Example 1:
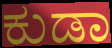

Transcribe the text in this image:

ಕುಡಾ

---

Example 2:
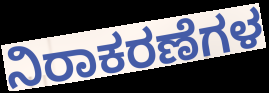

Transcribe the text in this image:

ನಿರಾಕರಣೆಗಳ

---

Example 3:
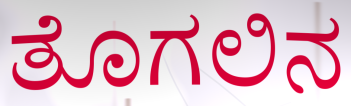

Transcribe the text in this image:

ತೊಗಲಿನ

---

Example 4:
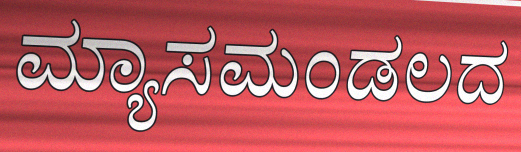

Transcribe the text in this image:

ಮ್ಯಾಸಮಂಡಲದ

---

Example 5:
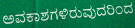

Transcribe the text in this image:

ಅವಕಾಶಗಳಿರುವುದರಿಂದ